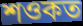
শওকত